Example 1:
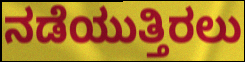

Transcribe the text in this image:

ನಡೆಯುತ್ತಿರಲು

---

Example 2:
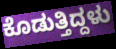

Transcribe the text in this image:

ಕೊಡುತ್ತಿದ್ದಳು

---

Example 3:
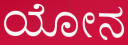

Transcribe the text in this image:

ಯೋನ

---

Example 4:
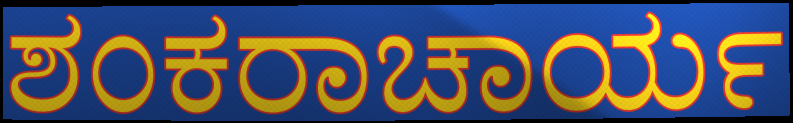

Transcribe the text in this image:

ಶಂಕರಾಚಾರ್ಯ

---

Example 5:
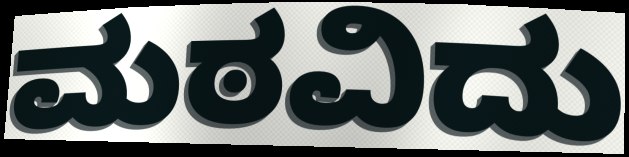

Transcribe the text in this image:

ಮಠವಿದು